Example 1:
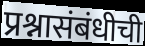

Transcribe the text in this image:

प्रश्नासंबंधीची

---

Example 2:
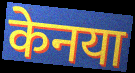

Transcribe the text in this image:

केनया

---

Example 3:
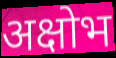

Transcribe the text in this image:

अक्षोभ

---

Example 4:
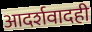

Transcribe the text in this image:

आदर्शवादही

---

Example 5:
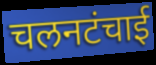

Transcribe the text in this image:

चलनटंचाई